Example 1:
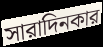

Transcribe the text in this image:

সারাদিনকার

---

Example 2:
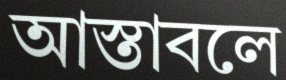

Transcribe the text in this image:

আস্তাবলে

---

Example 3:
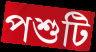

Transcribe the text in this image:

পশুটি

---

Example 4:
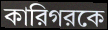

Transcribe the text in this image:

কারিগরকে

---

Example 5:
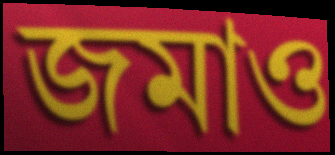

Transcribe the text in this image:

জমাও